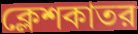
ক্লেশকাতর